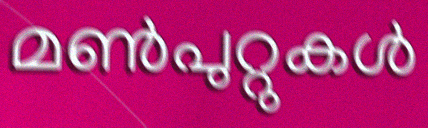
മൺപുറ്റുകൾ